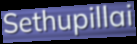
Sethupillai